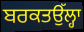
ਬਰਕਤਉੱਲ੍ਹਾ